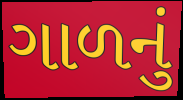
ગાળનું